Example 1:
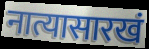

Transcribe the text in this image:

नात्यासारखं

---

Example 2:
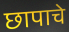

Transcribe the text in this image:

छापाचे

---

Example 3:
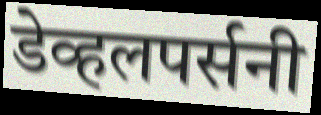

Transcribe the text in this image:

डेव्हलपर्सनी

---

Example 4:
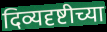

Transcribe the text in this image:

दिव्यदृष्टीच्या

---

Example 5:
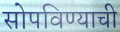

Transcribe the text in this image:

सोपविण्याची